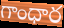
గాంధార